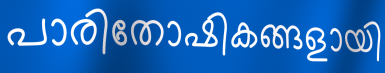
പാരിതോഷികങ്ങളായി